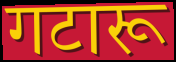
गटारू